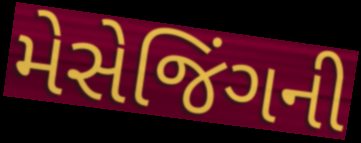
મેસેજિંગની